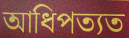
আধিপত্যত